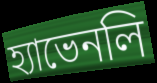
হ্যাভেনলি